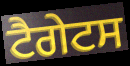
ਟੈਗੇਟਸ